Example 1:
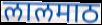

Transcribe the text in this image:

लालमाठ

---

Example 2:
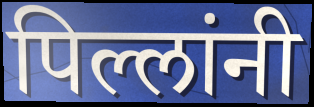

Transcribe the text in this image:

पिल्लांनी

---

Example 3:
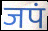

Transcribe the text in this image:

जपं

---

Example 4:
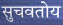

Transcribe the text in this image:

सुचवतोय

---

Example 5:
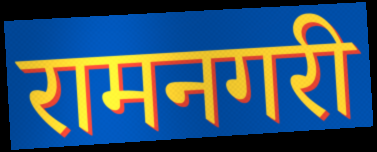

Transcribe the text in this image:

रामनगरी